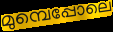
മുമ്പെപ്പോലെ